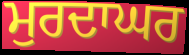
ਮੁਰਦਾਘਰ